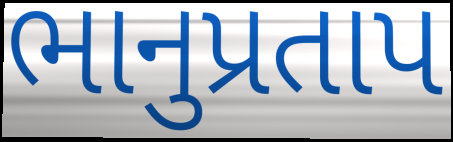
ભાનુપ્રતાપ